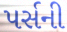
પર્સની